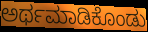
ಅರ್ಥಮಾಡಿಕೊಂಡು